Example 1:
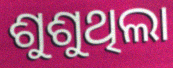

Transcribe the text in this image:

ଶୁଶୁଥିଲା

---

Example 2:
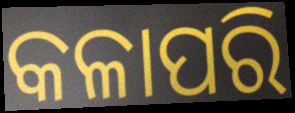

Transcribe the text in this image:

କଳାପରି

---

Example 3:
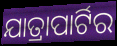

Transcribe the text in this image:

ଯାତ୍ରାପାର୍ଟିର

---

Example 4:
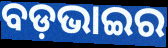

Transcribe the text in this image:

ବଡ଼ଭାଇର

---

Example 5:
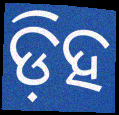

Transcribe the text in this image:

ଡ଼ିହ